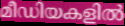
മീഡിയകളിൽ